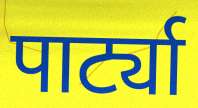
पार्ट्या